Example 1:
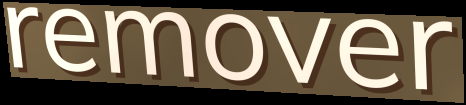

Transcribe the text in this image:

remover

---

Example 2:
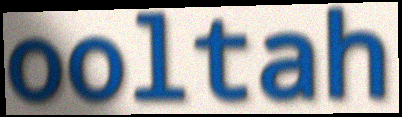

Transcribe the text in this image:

ooltah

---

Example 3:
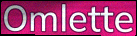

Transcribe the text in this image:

Omlette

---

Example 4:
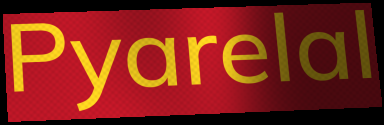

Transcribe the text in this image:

Pyarelal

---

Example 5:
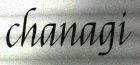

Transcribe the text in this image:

chanagi